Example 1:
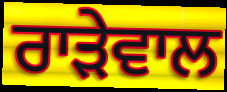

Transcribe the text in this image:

ਰਾੜੇਵਾਲ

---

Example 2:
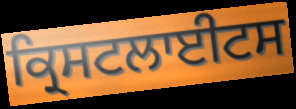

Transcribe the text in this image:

ਕ੍ਰਿਸਟਲਾਈਟਸ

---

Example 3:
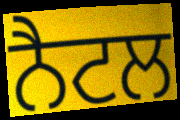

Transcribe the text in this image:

ਨੈਟਲ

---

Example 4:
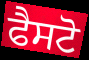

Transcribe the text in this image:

ਫੈਸਟੋ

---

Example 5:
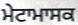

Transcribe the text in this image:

ਮੇਟਾਮਾਸਕ